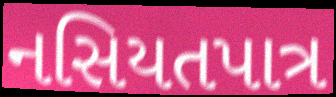
નસિયતપાત્ર